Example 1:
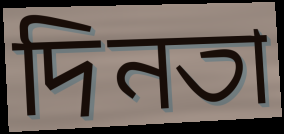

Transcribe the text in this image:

দিনতা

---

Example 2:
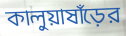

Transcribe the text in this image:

কালুয়াষাঁড়ের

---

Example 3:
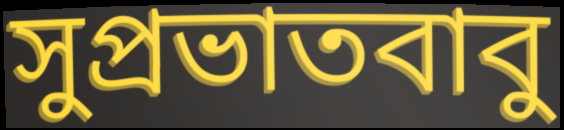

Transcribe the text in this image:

সুপ্রভাতবাবু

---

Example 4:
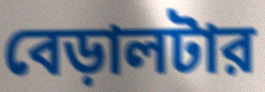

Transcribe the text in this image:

বেড়ালটার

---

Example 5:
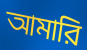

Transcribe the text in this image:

আমারি